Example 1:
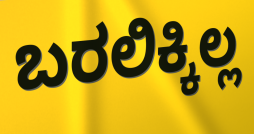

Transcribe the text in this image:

ಬರಲಿಕ್ಕಿಲ್ಲ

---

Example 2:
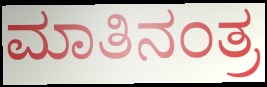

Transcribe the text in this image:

ಮಾತಿನಂತ್ರ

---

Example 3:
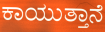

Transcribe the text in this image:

ಕಾಯುತ್ತಾನೆ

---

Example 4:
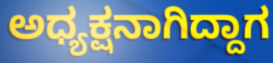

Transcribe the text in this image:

ಅಧ್ಯಕ್ಷನಾಗಿದ್ದಾಗ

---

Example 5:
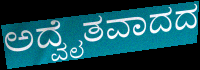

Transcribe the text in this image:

ಅದ್ವೈತವಾದದ